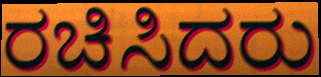
ರಚಿಸಿದರು